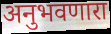
अनुभवणारा